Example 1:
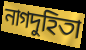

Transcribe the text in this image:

নাগদুহিতা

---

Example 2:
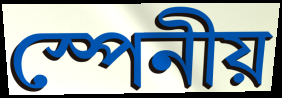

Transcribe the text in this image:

স্পেনীয়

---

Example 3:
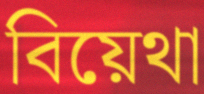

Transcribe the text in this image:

বিয়েথা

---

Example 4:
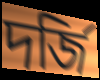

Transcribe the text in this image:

দর্জি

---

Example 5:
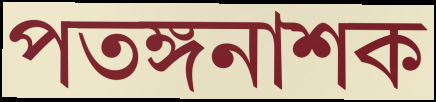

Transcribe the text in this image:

পতঙ্গনাশক